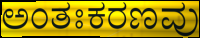
ಅಂತಃಕರಣವು